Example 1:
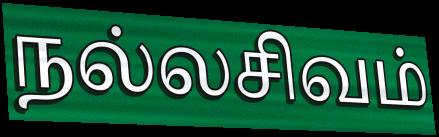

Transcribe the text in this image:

நல்லசிவம்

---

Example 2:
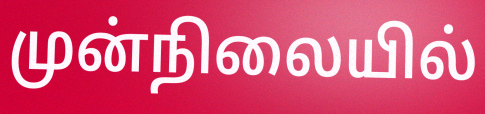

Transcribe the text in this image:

முன்நிலையில்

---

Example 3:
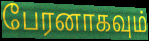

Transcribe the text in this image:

பேரனாகவும்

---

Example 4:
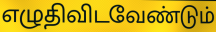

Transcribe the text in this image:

எழுதிவிடவேண்டும்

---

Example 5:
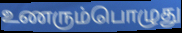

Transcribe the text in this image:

உணரும்பொழுது